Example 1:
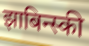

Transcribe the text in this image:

झाबिन्स्की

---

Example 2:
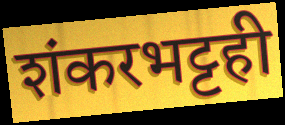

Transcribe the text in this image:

शंकरभट्टही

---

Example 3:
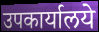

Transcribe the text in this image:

उपकार्यालये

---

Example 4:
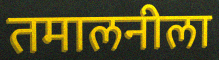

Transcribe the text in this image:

तमालनीला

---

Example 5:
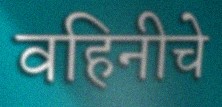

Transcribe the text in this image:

वहिनीचे